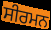
ਸੀਰਮਨ